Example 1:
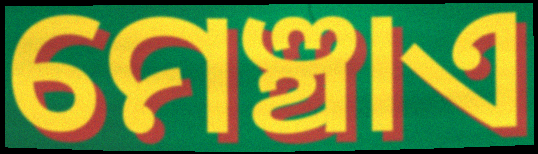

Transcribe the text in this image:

ମେଞ୍ଚାଏ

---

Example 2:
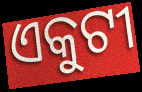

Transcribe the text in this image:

ଏକୁଟୀ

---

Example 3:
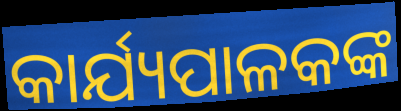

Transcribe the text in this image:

କାର୍ଯ୍ୟପାଳକଙ୍କ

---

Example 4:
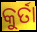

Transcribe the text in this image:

କୁର୍ତା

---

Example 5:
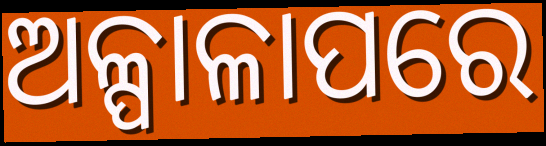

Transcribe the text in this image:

ଅଳ୍ପାଳାପରେ